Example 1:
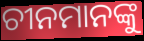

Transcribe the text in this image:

ଚୀନମାନଙ୍କୁ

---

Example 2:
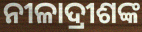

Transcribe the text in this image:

ନୀଳାଦ୍ରୀଶଙ୍କ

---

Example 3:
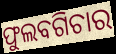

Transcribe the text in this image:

ଫୁଲବଗିଚାର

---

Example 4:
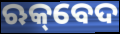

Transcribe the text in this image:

ଋକ୍‌ବେଦ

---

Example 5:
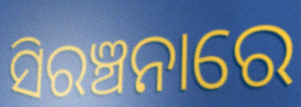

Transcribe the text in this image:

ସିରଞ୍ଚନାରେ